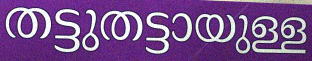
തട്ടുതട്ടായുള്ള